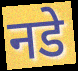
नडे